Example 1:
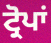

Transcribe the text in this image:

ਟ੍ਰੋਪਾਂ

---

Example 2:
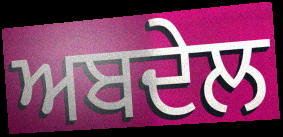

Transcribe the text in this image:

ਅਬਦੇਲ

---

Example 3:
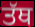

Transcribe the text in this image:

ਤੱਥ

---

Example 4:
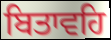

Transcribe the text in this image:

ਬਿਤਾਵਹਿ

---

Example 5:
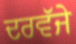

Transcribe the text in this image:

ਦਰਵੱਜੇ